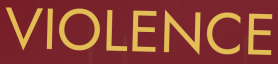
VIOLENCE